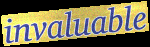
invaluable